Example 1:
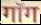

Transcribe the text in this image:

गॉग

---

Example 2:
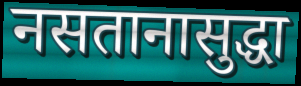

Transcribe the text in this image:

नसतानासुद्धा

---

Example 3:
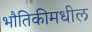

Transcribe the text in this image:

भौतिकीमधील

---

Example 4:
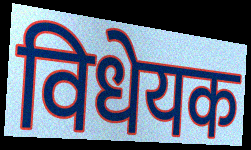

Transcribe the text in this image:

विधेयक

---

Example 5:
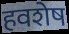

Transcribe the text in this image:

हवशेष